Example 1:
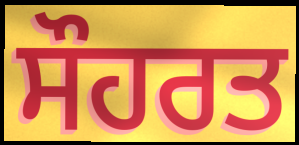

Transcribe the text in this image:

ਸੌਹਰਤ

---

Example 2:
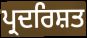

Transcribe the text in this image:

ਪ੍ਰਦਰਿਸ਼ਤ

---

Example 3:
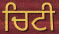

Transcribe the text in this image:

ਚਿਟੀ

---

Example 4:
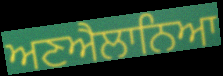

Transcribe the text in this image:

ਅਣਐਲਾਨਿਆ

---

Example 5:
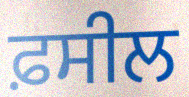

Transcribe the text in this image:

ਫ਼ਸੀਲ